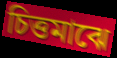
চিত্তমাঝে